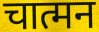
चात्मन